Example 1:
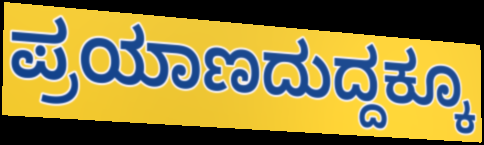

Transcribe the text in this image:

ಪ್ರಯಾಣದುದ್ದಕ್ಕೂ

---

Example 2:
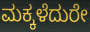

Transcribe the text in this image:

ಮಕ್ಕಳೆದುರೇ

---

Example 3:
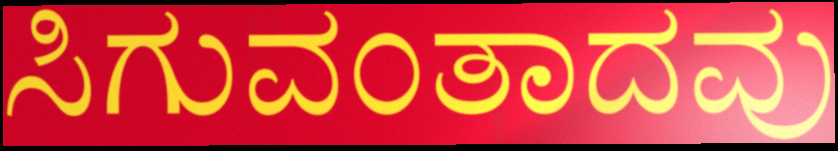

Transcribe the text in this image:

ಸಿಗುವಂತಾದವು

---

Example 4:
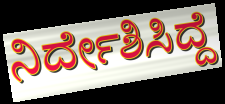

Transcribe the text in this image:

ನಿರ್ದೇಶಿಸಿದ್ದೆ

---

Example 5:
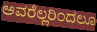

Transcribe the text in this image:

ಅವರೆಲ್ಲರಿಂದಲೂ